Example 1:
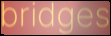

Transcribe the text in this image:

bridges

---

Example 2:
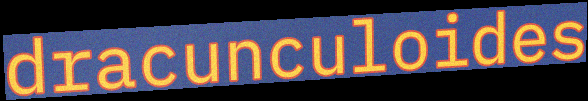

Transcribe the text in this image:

dracunculoides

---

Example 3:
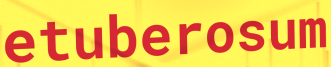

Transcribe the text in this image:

etuberosum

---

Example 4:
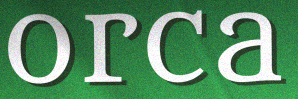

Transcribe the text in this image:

orca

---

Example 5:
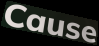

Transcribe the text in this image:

Cause